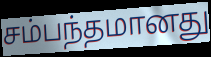
சம்பந்தமானது